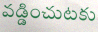
వడ్డించుటకు